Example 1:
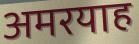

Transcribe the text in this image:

अमरयाह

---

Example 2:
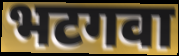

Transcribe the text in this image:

भटगवा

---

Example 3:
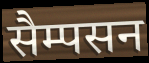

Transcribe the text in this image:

सैम्पसन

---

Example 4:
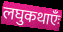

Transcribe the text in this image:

लघुकथाएँः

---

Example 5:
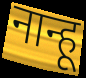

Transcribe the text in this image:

नान्हू